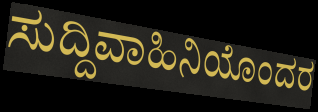
ಸುದ್ದಿವಾಹಿನಿಯೊಂದರ